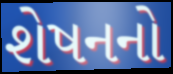
શેષનનો